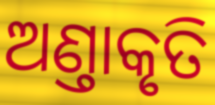
ଅଣ୍ତାକୃତି